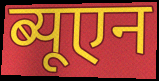
ब्यूएन